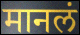
मानलं